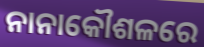
ନାନାକୌଶଳରେ